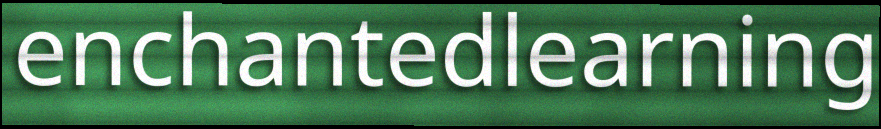
enchantedlearning